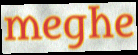
meghe